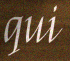
qui